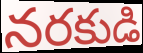
నరకుడి